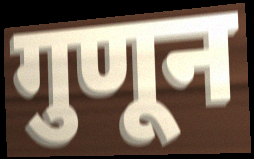
गुणून